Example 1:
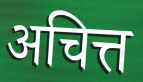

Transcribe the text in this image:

अचित्त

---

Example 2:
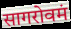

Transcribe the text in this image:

सागरोवमं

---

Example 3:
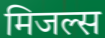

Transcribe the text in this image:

मिजल्स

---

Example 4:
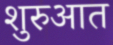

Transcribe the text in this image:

शुरुआत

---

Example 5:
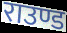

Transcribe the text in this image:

राउण्ड